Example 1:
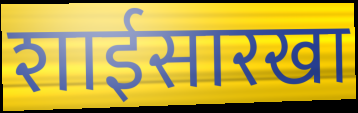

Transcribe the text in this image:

शाईसारखा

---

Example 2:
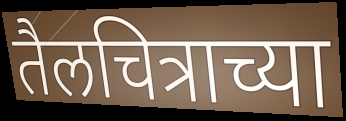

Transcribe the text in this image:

तैलचित्राच्या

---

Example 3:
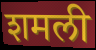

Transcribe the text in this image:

शमली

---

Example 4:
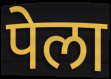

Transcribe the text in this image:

पेला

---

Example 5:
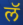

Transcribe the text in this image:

लॅ